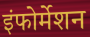
इंफोर्मेशन